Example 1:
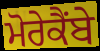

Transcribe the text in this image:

ਮੋਰੇਕੈਂਬੇ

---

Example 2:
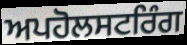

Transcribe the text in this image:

ਅਪਹੋਲਸਟਰਿੰਗ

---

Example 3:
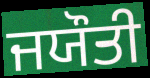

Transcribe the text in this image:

ਜਯੌਤੀ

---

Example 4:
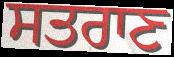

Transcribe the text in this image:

ਸਤਰਾਣ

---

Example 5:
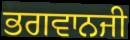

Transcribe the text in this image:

ਭਗਵਾਨਜੀ